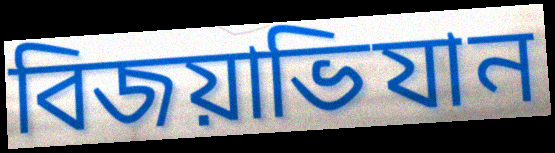
বিজয়াভিযান